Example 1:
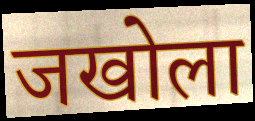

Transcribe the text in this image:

जखोला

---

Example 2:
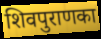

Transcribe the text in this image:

शिवपुराणका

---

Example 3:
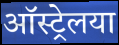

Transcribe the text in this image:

ऑस्ट्रेलया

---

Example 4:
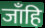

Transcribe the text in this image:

जाँहि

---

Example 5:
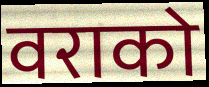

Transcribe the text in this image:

वराको